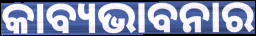
କାବ୍ୟଭାବନାର